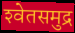
श्वेतसमुद्र